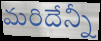
మరిదేన్నీ